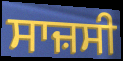
ਸਾਜ਼ਸੀ